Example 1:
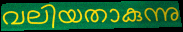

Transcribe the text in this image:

വലിയതാകുന്നു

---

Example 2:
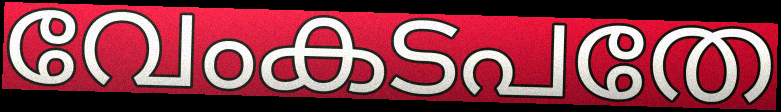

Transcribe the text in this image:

വേംകടപതേ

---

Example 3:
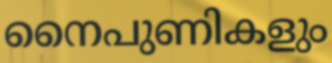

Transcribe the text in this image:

നൈപുണികളും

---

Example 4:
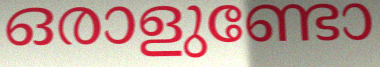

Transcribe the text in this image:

ഒരാളുണ്ടോ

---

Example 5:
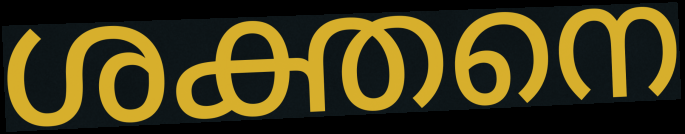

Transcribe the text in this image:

ശക്തനെ